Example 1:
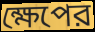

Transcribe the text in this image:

ক্ষেপের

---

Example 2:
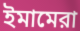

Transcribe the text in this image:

ইমামেরা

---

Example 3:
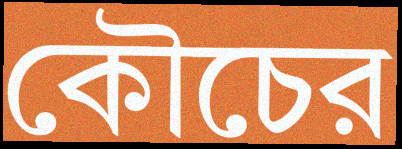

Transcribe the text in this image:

কৌচের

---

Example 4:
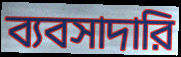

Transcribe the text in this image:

ব্যবসাদারি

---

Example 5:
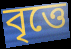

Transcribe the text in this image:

বৃত্তে